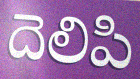
దెలిపి